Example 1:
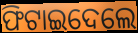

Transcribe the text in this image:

ଫିଟାଇଦେଲେ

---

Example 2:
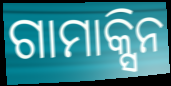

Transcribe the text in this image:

ଗାମାକ୍ସିନ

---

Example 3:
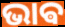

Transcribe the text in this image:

ଭାଵ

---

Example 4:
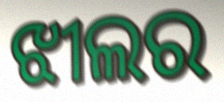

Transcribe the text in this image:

ଝୀଲର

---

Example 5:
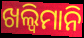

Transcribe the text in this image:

ଖଲ୍ୱିମାନି